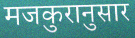
मजकुरानुसार